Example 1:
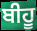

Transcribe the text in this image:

ਬੀਹੂ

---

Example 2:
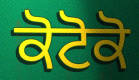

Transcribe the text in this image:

ਕੋਟੋਕੋ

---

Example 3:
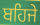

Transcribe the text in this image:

ਬਹਿਜੇ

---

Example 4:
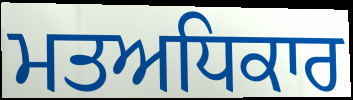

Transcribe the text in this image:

ਮਤਅਧਿਕਾਰ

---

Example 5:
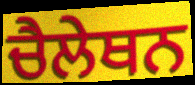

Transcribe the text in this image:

ਚੈਲੇਥਨ